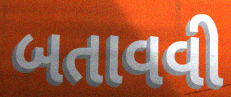
બતાવવી